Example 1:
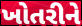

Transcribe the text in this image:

ખોતરીને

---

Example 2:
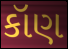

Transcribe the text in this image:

કૉણ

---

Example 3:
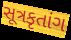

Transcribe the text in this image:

સૂત્રકૃતાંગ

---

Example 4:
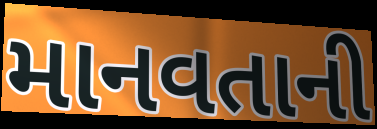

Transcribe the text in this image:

માનવતાની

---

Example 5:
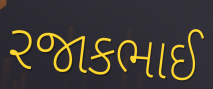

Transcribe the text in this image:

રજાકભાઈ